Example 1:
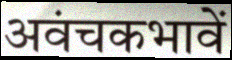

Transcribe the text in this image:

अवंचकभावें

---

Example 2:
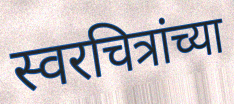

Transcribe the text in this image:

स्वरचित्रांच्या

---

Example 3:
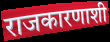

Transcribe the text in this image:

राजकारणाशी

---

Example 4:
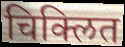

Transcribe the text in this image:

चिक्लित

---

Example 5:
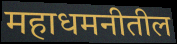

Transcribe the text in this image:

महाधमनीतील